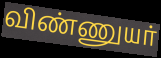
விண்ணுயர்